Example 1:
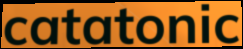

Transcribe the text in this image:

catatonic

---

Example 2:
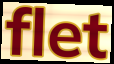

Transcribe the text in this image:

flet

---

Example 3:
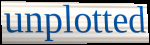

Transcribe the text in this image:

unplotted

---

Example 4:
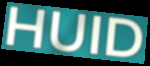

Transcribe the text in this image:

HUID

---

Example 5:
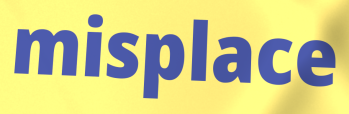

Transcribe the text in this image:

misplace